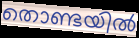
തൊണ്ടയിൽ